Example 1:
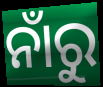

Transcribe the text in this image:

ନାଁରୁ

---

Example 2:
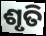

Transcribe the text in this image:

ଶୃତି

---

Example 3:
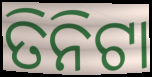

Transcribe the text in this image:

ତିନିଟା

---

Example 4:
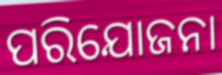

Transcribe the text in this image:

ପରିଯୋଜନା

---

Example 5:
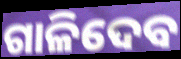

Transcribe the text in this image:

ଗାଳିଦେବ